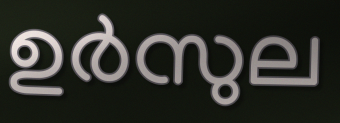
ഉർസുല